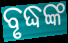
ବୃଦ୍ଧଙ୍କ